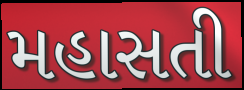
મહાસતી